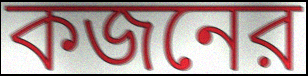
কজনের